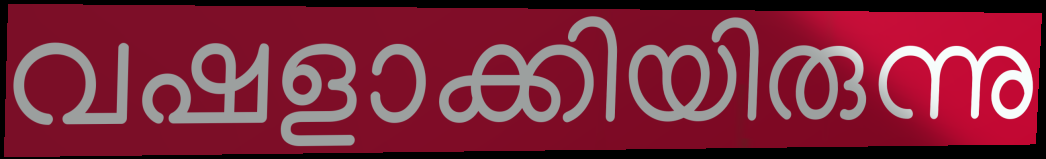
വഷളാക്കിയിരുന്നു